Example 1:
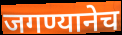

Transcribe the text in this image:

जगण्यानेच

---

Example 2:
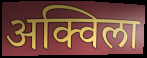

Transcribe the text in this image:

अक्विला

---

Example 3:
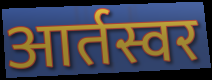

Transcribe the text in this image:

आर्तस्वर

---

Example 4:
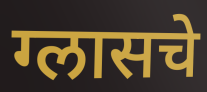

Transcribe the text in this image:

ग्लासचे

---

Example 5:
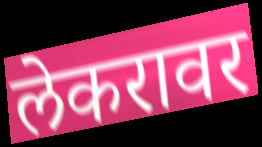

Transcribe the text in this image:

लेकरावर